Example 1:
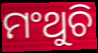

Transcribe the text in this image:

ମଂଥୁଚି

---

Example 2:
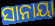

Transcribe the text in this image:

ସାନାୟା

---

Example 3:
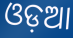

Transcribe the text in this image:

ଓଡ଼ଆ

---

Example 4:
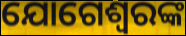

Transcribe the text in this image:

ଯୋଗେଶ୍ୱରଙ୍କ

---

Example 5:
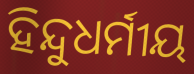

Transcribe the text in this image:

ହିନ୍ଦୁଧର୍ମୀୟ